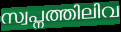
സ്വപ്നത്തിലിവ